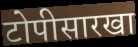
टोपीसारखा